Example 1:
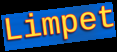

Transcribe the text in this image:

Limpet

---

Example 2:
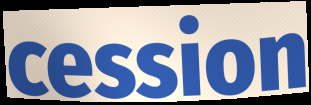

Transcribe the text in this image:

cession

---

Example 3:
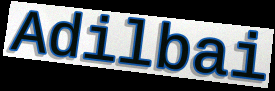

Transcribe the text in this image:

Adilbai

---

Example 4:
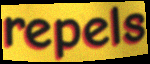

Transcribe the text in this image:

repels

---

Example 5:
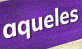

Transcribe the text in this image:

aqueles